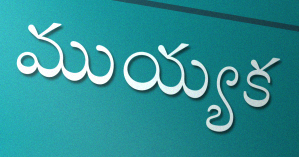
ముయ్యక